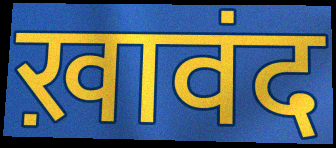
ख़ावंद